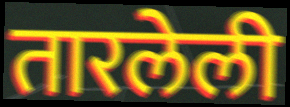
तारलेली